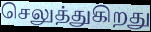
செலுத்துகிறது